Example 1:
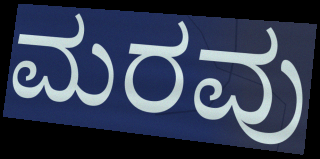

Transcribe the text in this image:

ಮರವು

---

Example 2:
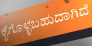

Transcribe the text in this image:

ಕೈಗೊಳ್ಳಬಹುದಾಗಿದೆ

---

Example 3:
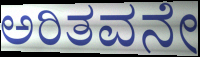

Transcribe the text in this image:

ಅರಿತವನೇ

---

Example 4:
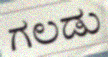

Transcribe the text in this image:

ಗಲಡು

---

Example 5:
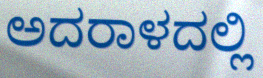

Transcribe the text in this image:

ಅದರಾಳದಲ್ಲಿ